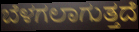
ಬೆಳಗಲಾಗುತ್ತದೆ